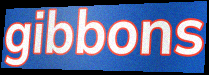
gibbons